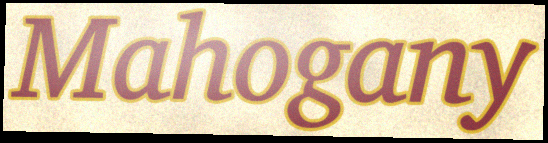
Mahogany